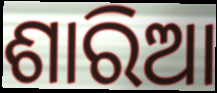
ଶାରିଆ